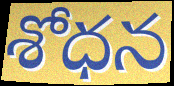
శోధన